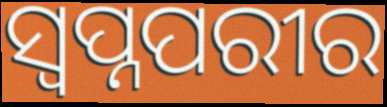
ସ୍ୱପ୍ନପରୀର